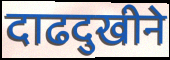
दाढदुखीने